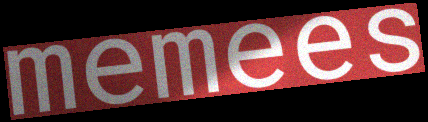
memees